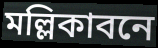
মল্লিকাবনে